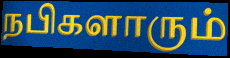
நபிகளாரும்